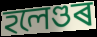
হলেণ্ডৰ